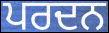
ਪਰਦਨ